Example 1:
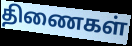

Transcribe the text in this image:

திணைகள்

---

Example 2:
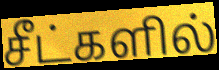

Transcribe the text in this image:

சீட்களில்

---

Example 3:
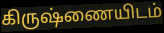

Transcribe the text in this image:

கிருஷ்ணையிடம்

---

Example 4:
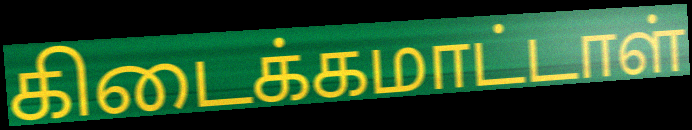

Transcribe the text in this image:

கிடைக்கமாட்டாள்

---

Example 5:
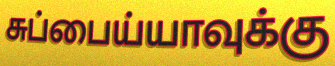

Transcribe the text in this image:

சுப்பைய்யாவுக்கு